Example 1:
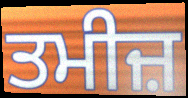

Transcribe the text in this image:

ਤਮੀਜ਼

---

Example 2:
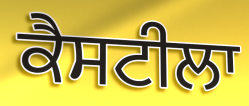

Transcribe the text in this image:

ਕੈਸਟੀਲਾ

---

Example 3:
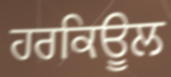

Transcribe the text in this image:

ਹਰਕਿਊਲ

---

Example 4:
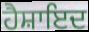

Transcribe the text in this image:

ਹੈਸ਼ਾਇਦ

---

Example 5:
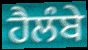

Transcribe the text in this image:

ਹੈਲੰਬੇ